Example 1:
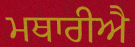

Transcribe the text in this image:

ਮਥਾਰੀਐ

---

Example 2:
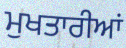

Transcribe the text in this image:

ਮੁਖਤਾਰੀਆਂ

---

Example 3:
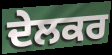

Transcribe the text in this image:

ਦੇਲਕਰ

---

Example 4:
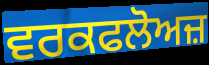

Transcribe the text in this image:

ਵਰਕਫਲੋਅਜ਼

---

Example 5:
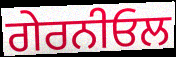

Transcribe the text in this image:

ਗੇਰਨੀਓਲ